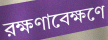
রক্ষণাবেক্ষণে